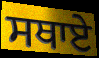
ਸਥਾਏ